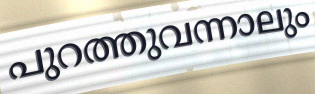
പുറത്തുവന്നാലും